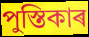
পুস্তিকাৰ